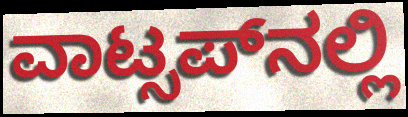
ವಾಟ್ಸಪ್‍ನಲ್ಲಿ